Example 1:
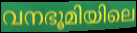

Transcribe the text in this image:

വനഭൂമിയിലെ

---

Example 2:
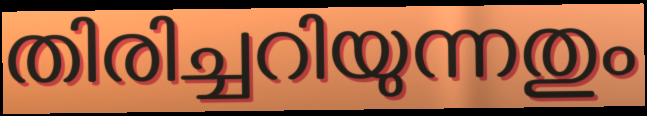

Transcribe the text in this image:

തിരിച്ചറിയുന്നതും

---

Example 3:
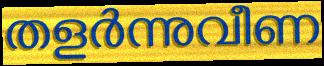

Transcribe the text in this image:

തളർന്നുവീണ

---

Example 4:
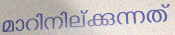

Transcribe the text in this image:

മാറിനില്ക്കുന്നത്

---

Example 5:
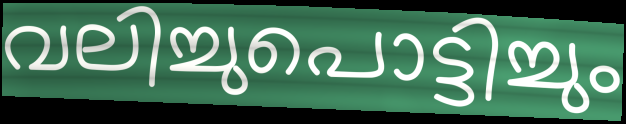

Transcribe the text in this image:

വലിച്ചുപൊട്ടിച്ചും